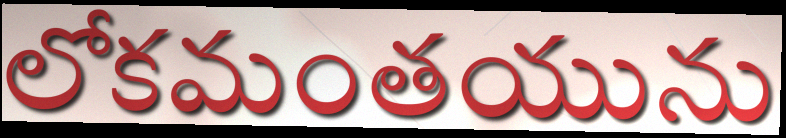
లోకమంతయును